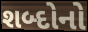
શબ્દોનો